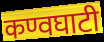
कण्वघाटी